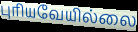
புரியவேயில்லை